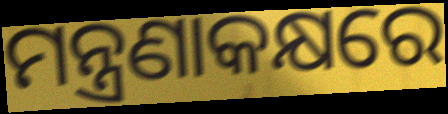
ମନ୍ତ୍ରଣାକକ୍ଷରେ